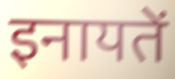
इनायतें